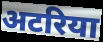
अटरिया